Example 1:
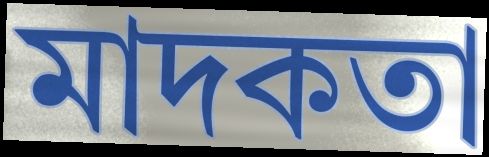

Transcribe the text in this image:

মাদকতা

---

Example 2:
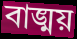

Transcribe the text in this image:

বাঙ্ময়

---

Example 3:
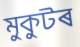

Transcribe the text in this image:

মুকুটৰ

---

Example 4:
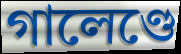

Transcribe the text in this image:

গালেণ্ডে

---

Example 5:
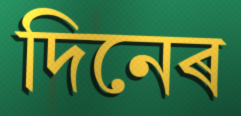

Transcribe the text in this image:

দিনেৰ